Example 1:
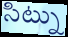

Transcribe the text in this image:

సిట్ను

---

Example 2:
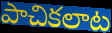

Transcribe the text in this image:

పాచికలాట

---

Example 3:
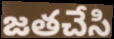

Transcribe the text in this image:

జతచేసి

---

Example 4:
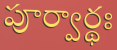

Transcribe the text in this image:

పూర్వార్థః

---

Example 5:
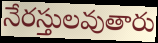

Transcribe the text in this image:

నేరస్తులవుతారు